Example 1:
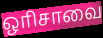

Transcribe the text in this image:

ஒரிசாவை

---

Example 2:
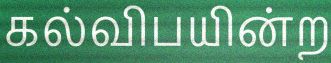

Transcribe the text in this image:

கல்விபயின்ற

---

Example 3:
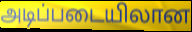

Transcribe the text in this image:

அடிப்படையிலான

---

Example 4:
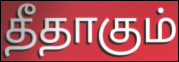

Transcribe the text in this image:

தீதாகும்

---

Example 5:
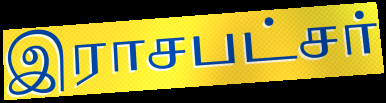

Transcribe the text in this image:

இராசபட்சர்